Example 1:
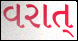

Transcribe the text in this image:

વરાત્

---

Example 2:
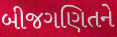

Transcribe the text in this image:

બીજગણિતને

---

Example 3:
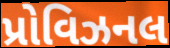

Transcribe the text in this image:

પ્રોવિઝનલ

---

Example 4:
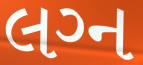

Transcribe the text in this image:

લગ્‍ન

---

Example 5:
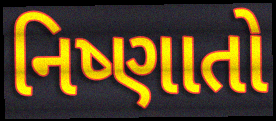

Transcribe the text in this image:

નિષ્ણાતો